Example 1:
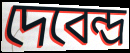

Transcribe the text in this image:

দেবেন্দ্র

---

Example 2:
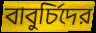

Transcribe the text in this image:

বাবুর্চিদের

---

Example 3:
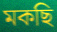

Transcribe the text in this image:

মকছি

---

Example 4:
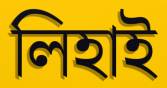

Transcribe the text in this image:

লিহাই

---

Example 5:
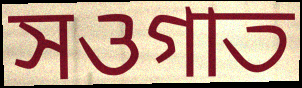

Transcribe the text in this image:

সওগাত